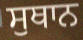
ਸੁਥਾਨ